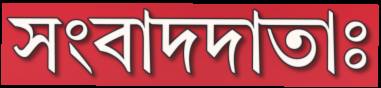
সংবাদদাতাঃ